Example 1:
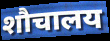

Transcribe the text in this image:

शौचालय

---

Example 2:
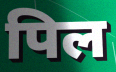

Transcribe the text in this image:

पिल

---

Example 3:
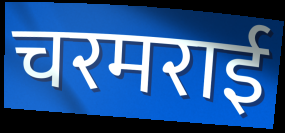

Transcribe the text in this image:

चरमराई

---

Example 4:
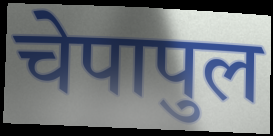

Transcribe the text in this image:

चेपापुल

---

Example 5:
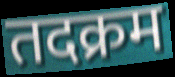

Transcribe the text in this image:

तदक्रम